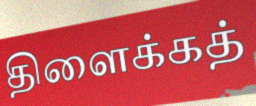
திளைக்கத்